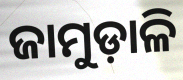
ଜାମୁଡ଼ାଳି